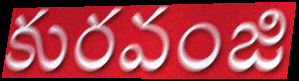
కురవంజి